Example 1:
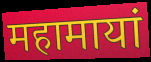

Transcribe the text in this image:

महामायां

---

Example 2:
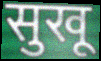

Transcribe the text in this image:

सुखू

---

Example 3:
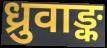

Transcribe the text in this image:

ध्रुवाङ्क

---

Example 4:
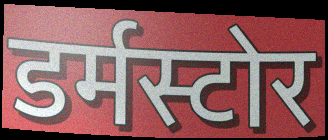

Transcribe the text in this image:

डर्मस्टोर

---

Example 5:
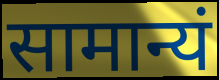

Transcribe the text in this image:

सामान्यं